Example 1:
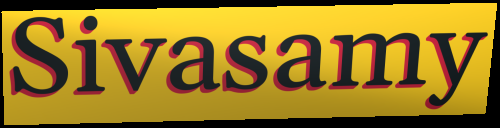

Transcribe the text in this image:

Sivasamy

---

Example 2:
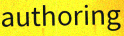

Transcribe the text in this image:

authoring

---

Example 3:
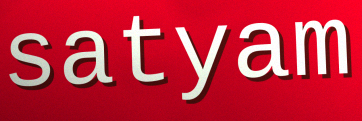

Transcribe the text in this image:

satyam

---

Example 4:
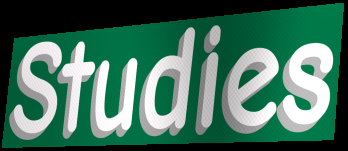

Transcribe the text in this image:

Studies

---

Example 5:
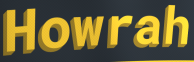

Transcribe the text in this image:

Howrah